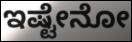
ಇಷ್ಟೇನೋ